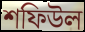
শফিউল